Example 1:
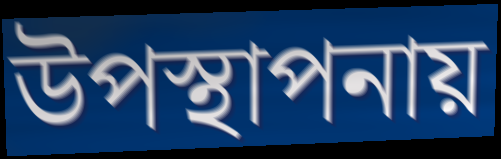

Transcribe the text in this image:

উপস্থাপনায়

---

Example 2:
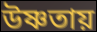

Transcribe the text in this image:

উষ্ণতায়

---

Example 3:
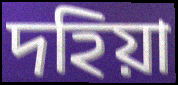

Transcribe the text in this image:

দহিয়া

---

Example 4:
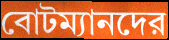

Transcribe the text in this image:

বোটম্যানদের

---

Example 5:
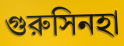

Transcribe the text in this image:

গুরুসিনহা